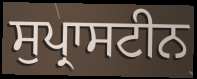
ਸੁਪ੍ਰਾਸਟੀਨ